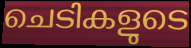
ചെടികളുടെ